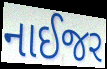
નાઈજર